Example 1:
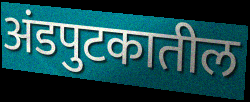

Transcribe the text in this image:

अंडपुटकातील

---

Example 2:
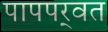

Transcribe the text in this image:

पापपर्वत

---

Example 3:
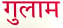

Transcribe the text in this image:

गुलाम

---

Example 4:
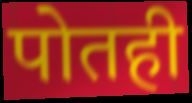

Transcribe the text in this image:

पोतही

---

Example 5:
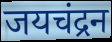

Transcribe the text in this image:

जयचंद्रन